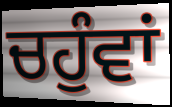
ਚਹੁੰਵਾਂ